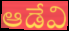
ఆడేవి